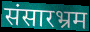
संसारभ्रम